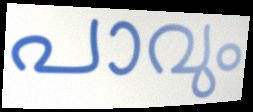
പാവും